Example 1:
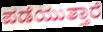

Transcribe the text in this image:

ಪಡೆಯುತ್ತಾರೆ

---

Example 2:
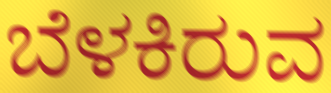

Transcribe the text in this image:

ಬೆಳಕಿರುವ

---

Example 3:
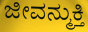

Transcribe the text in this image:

ಜೀವನ್ಮುಕ್ತಿ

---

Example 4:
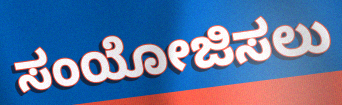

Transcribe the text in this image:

ಸಂಯೋಜಿಸಲು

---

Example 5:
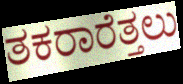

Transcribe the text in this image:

ತಕರಾರೆತ್ತಲು